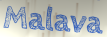
Malava